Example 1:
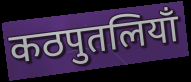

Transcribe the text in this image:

कठपुतलियाँ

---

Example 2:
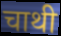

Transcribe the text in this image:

चाथी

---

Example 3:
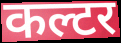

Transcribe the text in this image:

कल्टर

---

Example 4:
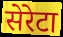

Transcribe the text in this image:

सेरेटा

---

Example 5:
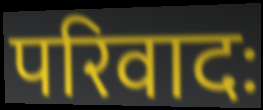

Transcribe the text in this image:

परिवादः